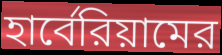
হার্বেরিয়ামের